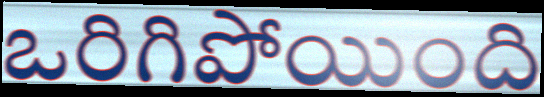
ఒరిగిపోయింది